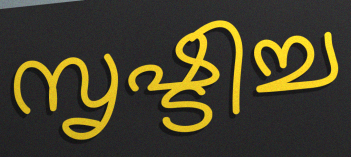
സൃഷ്ടിച്ച